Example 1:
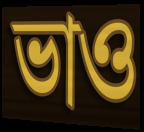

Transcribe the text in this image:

ভাও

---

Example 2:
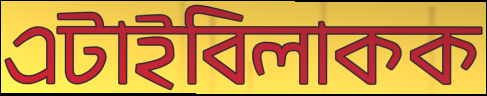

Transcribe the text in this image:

এটাইবিলাকক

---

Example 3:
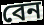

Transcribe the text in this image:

বেন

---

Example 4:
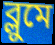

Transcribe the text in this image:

ব্লুমে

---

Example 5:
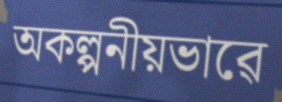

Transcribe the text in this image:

অকল্পনীয়ভাৱে